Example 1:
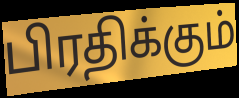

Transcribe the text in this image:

பிரதிக்கும்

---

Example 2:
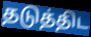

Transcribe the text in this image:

தடுத்திட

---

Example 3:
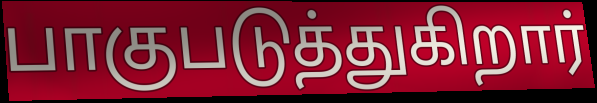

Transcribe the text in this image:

பாகுபடுத்துகிறார்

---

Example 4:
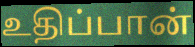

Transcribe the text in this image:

உதிப்பான்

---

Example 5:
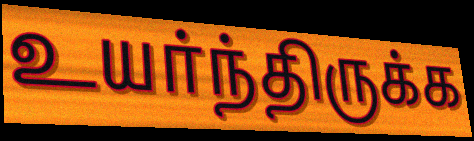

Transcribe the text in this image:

உயர்ந்திருக்க